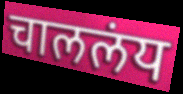
चाललंय